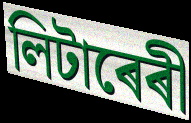
লিটাৰেৰী